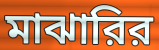
মাঝারির